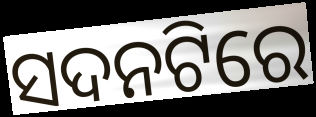
ସଦନଟିରେ